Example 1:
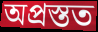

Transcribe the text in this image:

অপ্রস্তত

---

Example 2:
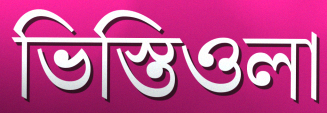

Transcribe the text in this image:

ভিস্তিওলা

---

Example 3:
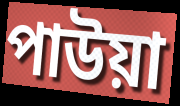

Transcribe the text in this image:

পাউয়া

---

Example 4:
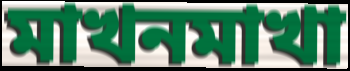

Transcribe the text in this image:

মাখনমাখা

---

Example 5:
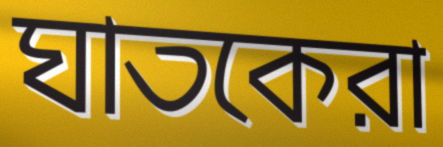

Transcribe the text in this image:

ঘাতকেরা